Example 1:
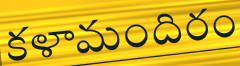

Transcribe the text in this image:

కళామందిరం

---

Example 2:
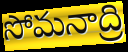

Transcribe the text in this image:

సోమనాద్రి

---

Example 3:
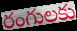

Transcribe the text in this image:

రంగులకు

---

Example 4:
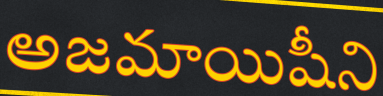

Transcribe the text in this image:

అజమాయిషీని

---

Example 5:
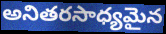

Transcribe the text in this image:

అనితరసాధ్యమైన